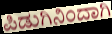
ಪಿಡುಗಿನಿಂದಾಗಿ